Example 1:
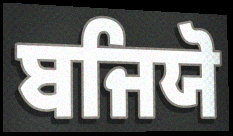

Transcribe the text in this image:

ਬਜਿਯੋ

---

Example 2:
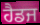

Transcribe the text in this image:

ਹੈਡਜ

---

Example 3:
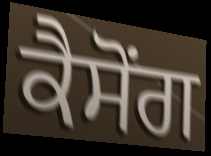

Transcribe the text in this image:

ਕੈਸੋਂਗ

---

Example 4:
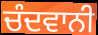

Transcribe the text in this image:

ਚੰਦਵਾਨੀ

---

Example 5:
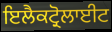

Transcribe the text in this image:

ਇਲੈਕਟ੍ਰੋਲਾਈਟ